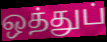
ஒத்துப்